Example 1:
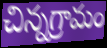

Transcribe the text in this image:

చిన్నగ్రామం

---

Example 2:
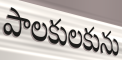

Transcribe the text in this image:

పాలకులకును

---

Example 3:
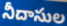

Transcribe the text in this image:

నీదాసుల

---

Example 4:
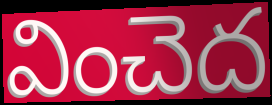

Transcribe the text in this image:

వించెద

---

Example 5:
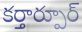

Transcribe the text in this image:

కర్తార్పూర్